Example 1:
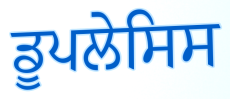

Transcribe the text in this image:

ਡੂਪਲੇਸਿਸ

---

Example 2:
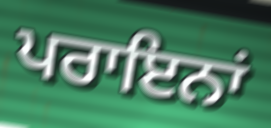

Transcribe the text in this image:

ਪਰਾਇਨਾਂ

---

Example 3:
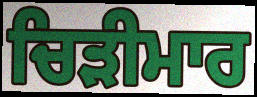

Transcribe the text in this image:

ਚਿੜੀਮਾਰ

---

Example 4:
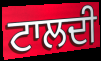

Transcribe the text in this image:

ਟਾਲਦੀ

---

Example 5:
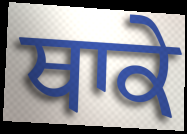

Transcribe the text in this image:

ਥਾਕੇ